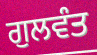
ਗੁਲਵੰਤ